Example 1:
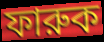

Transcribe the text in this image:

ফারুক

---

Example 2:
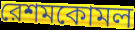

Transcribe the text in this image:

রেশমকোমল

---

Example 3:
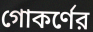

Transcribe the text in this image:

গোকর্ণের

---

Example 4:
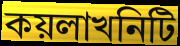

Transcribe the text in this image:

কয়লাখনিটি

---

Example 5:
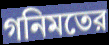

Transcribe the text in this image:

গনিমতের